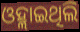
ଓହ୍ଲାଇଥିଲି